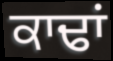
ਕਾਢਾਂ